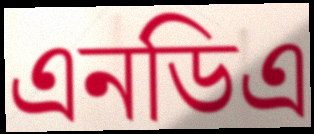
এনডিএ